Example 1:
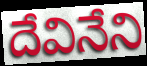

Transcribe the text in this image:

దేవినేని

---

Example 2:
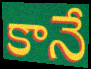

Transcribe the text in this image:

కానే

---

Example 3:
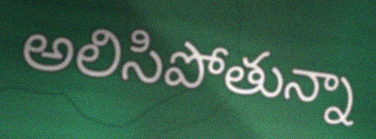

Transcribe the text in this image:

అలిసిపోతున్నా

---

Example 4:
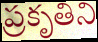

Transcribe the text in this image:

ప్రకృతిని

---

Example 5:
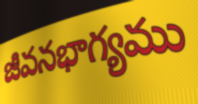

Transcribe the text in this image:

జీవనభాగ్యము